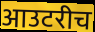
आउटरीच